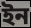
ইন